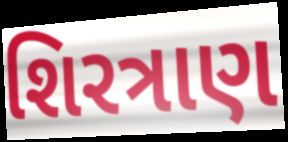
શિરત્રાણ